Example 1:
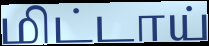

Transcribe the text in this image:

மிட்டாய்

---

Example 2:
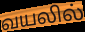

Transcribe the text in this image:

வயலில்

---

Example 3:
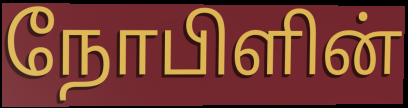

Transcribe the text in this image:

நோபிளின்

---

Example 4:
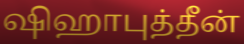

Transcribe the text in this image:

ஷிஹாபுத்தீன்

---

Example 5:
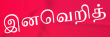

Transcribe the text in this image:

இனவெறித்